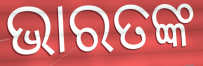
ଭାରତଙ୍କ